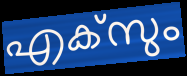
എക്‌സും